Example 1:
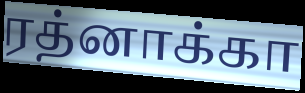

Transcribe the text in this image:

ரத்னாக்கா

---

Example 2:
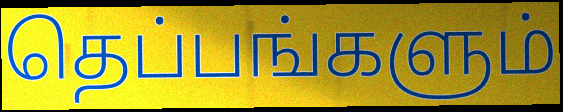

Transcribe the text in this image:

தெப்பங்களும்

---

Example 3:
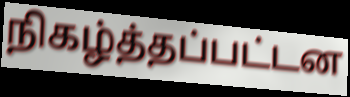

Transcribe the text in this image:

நிகழ்த்தப்பட்டன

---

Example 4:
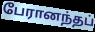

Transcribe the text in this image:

பேரானந்தப்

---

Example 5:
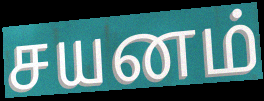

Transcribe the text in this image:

சயனம்